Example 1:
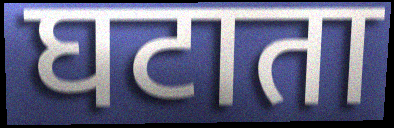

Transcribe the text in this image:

घटाता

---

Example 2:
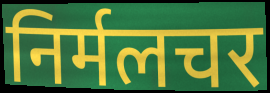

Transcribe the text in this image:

निर्मलचर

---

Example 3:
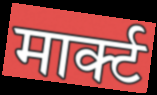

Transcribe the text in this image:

मार्क्ट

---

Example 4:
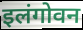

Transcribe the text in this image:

इलंगोवन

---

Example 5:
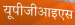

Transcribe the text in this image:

यूपीजीआइएस